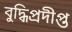
বুদ্ধিপ্রদীপ্ত